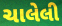
ચાલેલી